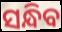
ସନ୍ଧିବ